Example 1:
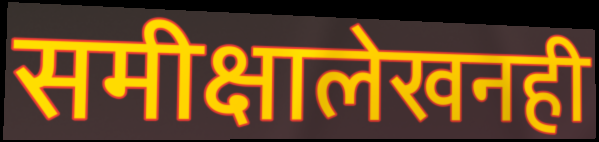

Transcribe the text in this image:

समीक्षालेखनही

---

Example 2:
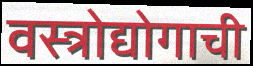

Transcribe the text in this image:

वस्त्रोद्योगाची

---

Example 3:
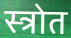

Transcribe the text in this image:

स्त्रोत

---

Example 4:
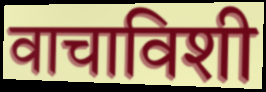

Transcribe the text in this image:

वाचाविशी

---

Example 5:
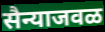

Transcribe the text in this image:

सैन्याजवळ